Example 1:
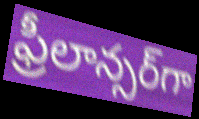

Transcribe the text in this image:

ఫ్రీలాన్సర్‌గా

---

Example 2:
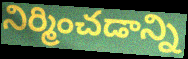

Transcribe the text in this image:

నిర్మించడాన్ని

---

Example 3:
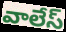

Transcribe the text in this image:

వాలేస్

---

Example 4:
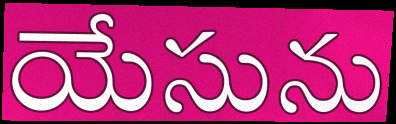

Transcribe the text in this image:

యేసును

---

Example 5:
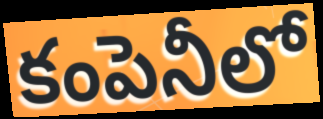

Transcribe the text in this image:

కంపెనీలో